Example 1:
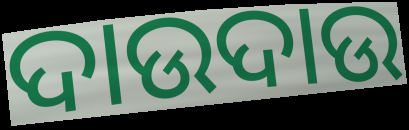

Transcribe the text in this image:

ଦାଉଦାଉ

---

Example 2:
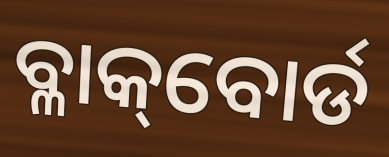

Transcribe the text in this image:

ବ୍ଳାକ୍‌ବୋର୍ଡ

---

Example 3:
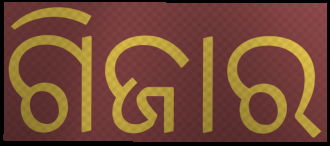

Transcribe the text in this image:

ଗିଜାର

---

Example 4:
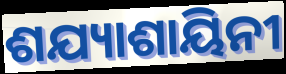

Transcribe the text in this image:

ଶଯ୍ୟାଶାୟିନୀ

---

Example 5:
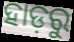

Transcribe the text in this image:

ହାଡ଼ରୁ